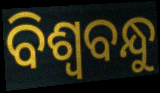
ବିଶ୍ୱବନ୍ଧୁ